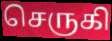
செருகி